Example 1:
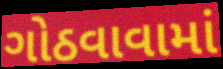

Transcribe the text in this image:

ગોઠવાવામાં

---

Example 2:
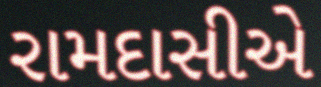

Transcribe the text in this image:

રામદાસીએ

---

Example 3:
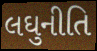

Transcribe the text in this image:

લઘુનીતિ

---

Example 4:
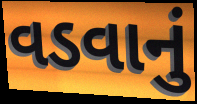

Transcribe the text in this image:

વડવાનું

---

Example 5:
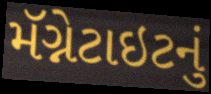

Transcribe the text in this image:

મૅગ્નેટાઇટનું